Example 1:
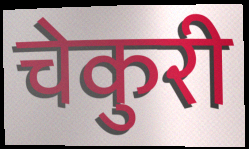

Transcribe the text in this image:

चेकुरी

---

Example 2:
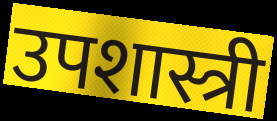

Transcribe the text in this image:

उपशास्त्री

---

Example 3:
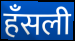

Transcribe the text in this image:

हँसली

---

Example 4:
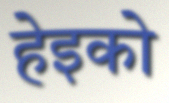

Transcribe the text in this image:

हेइको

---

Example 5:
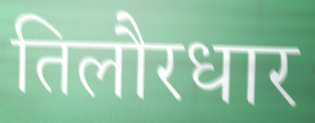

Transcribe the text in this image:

तिलौरधार